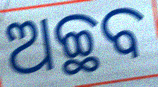
ଅଚ୍ଛବ